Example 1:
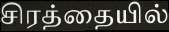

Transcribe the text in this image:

சிரத்தையில்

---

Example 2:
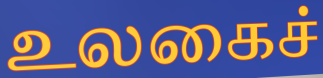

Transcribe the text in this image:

உலகைச்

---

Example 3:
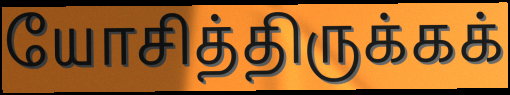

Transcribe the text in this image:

யோசித்திருக்கக்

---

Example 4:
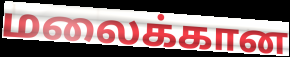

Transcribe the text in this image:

மலைக்கான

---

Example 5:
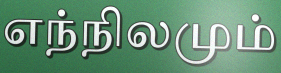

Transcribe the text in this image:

எந்நிலமும்